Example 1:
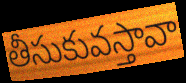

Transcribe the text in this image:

తీసుకువస్తావా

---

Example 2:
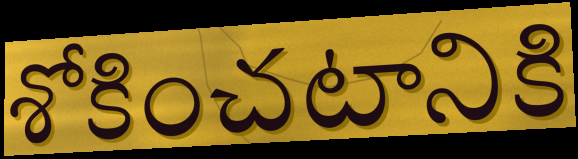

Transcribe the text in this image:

శోకించటానికి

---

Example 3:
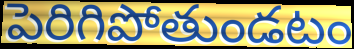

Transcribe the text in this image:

పెరిగిపోతుండటం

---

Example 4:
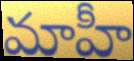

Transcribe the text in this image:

మాహీ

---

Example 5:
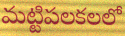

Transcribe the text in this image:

మట్టిపలకలలో